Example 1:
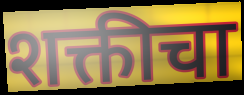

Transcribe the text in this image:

शक्तीचा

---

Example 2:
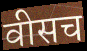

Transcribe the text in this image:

वीसच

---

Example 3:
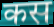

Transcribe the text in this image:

कस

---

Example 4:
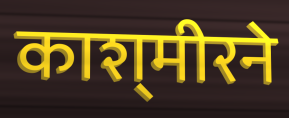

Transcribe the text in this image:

काश्मीरने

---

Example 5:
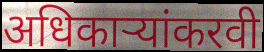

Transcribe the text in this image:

अधिकाऱ्यांकरवी